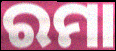
ରମା